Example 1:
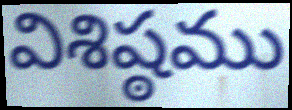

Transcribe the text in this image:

విశిష్ఠము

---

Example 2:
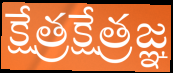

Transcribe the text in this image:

క్షేత్రక్షేత్రజ్ఞ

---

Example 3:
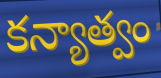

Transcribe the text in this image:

కన్యాత్వం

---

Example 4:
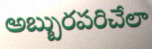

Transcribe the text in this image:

అబ్బురపరిచేలా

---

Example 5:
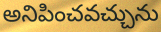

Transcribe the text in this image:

అనిపించవచ్చును